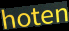
hoten